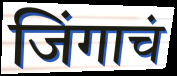
जिंगाचं